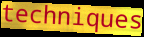
techniques